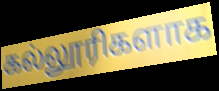
கல்லூரிகளாக